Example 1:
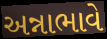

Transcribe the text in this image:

અન્નાભાવે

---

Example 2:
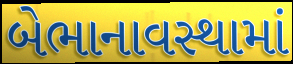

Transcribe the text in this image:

બેભાનાવસ્થામાં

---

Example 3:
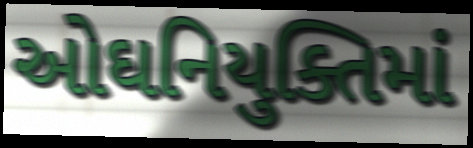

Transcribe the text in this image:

ઓઘનિયુક્તિમાં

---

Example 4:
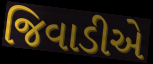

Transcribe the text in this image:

જિવાડીએ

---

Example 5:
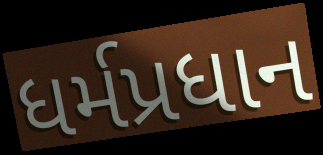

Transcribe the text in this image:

ધર્મપ્રધાન